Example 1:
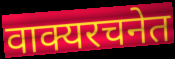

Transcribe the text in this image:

वाक्यरचनेत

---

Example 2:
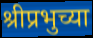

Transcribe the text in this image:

श्रीप्रभुच्या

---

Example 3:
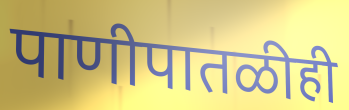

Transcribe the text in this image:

पाणीपातळीही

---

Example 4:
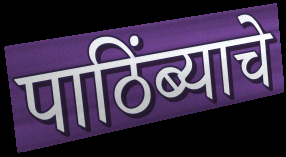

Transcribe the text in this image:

पाठिंब्याचे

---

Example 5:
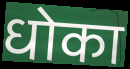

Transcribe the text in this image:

धोका